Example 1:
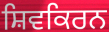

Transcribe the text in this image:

ਸ਼ਿਵਕਿਰਨ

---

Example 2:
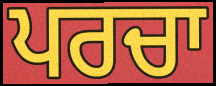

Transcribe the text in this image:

ਪਰਚਾ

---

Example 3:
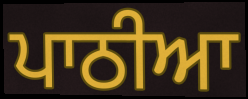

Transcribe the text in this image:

ਪਾਠੀਆ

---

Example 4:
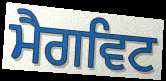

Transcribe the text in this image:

ਮੈਗਵਿਟ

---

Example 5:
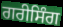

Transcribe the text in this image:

ਗਰੀਸਿੰਗ